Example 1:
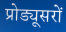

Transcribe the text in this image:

प्रोड्यूसरों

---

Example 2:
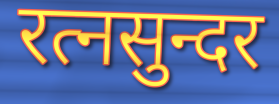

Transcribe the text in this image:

रत्नसुन्दर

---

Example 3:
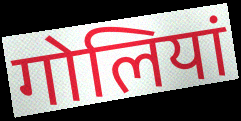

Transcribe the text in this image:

गोलियां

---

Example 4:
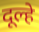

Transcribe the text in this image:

दूल्हे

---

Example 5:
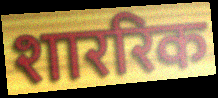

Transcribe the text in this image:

शाररिक